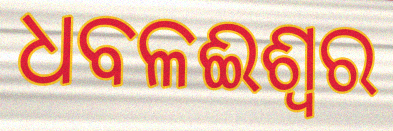
ଧବଳଈଶ୍ବର